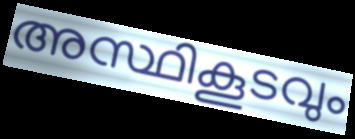
അസ്ഥികൂടവും